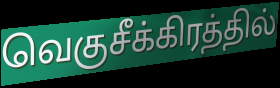
வெகுசீக்கிரத்தில்